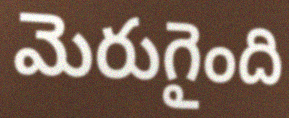
మెరుగైంది